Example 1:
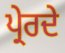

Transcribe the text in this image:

ਪ੍ਰੇਰਦੇ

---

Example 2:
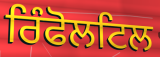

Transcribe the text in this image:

ਰਿੰਫੋਲਟਿਲ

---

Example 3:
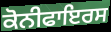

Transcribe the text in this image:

ਕੋਨੀਫਾਇਰਸ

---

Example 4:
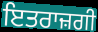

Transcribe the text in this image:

ਇਤਰਾਜ਼ਗੀ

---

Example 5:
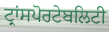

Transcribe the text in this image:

ਟ੍ਰਾਂਸਪੋਰਟੇਬਲਿਟੀ